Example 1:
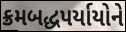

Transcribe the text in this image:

ક્રમબદ્ધપર્યાયોને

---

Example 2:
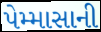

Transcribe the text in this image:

પેમ્માસાની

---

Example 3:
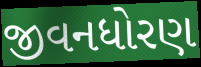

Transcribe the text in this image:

જીવનધોરણ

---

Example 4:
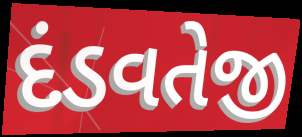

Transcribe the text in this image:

દંડવતેજી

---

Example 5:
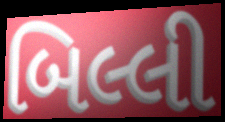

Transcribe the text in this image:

બિલ્લી